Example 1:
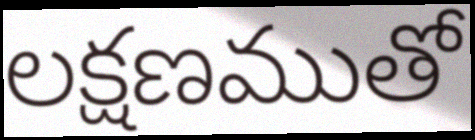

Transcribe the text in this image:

లక్షణముతో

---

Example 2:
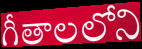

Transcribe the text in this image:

గీతాలలోని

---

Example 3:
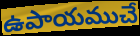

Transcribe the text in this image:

ఉపాయముచే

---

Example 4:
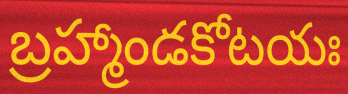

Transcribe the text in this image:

బ్రహ్మాండకోటయః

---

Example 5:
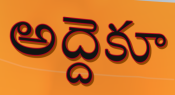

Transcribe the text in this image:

అద్దెకూ